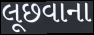
લૂછવાના